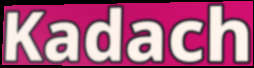
Kadach